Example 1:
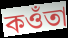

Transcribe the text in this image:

কওঁতা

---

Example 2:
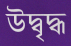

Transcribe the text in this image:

উদ্বৃদ্ধ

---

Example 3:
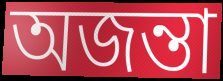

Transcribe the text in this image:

অজন্তা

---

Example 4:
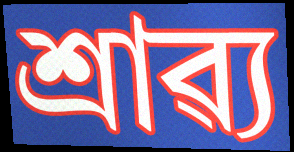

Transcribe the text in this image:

শ্ৰাৱ্য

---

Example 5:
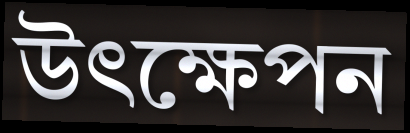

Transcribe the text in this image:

উৎক্ষেপন